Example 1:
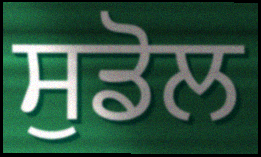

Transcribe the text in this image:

ਸੁਡੋਲ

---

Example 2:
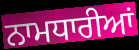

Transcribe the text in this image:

ਨਾਮਧਾਰੀਆਂ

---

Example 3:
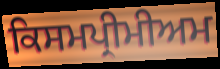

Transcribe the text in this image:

ਕਿਸਮਪ੍ਰੀਮੀਅਮ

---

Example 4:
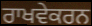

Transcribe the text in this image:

ਰਾਖਵੇਕਰਨ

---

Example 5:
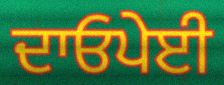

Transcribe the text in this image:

ਦਾਓਪੇਈ